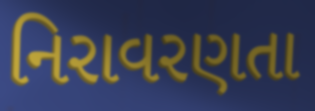
નિરાવરણતા